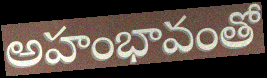
అహంభావంతో